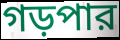
গড়পার